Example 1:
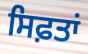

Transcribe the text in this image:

ਸਿਫ਼ਤਾਂ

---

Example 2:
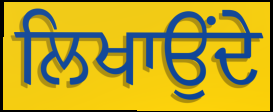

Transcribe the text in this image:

ਲਿਖਾਉਂਦੇ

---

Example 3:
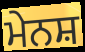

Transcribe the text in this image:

ਮੇਨਸ਼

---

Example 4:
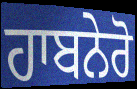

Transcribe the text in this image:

ਹਾਬਨੇਰੋ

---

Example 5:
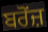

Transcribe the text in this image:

ਬਰੋਂਜ਼